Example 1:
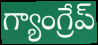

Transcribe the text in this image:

గ్యాంగ్రేప్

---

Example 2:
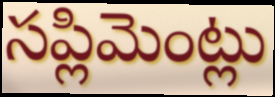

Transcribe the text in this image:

సప్లిమెంట్లు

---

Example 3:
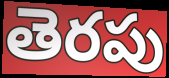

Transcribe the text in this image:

తెరపు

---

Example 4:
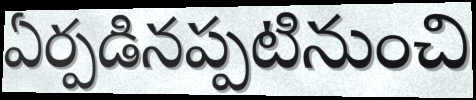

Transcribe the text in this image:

ఏర్పడినప్పటినుంచి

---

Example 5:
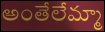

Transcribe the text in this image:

అంతేలేమ్మా